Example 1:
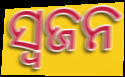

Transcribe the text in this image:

ସ୍ୱଜନ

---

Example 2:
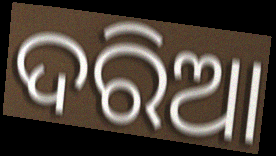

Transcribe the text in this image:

ଦରିଆ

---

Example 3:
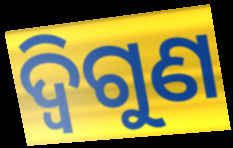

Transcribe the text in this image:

ଦ୍ୱିଗୁଣ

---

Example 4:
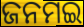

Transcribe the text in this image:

ଜନମଇ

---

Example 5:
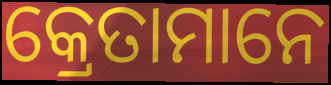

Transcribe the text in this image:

କ୍ରେତାମାନେ